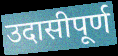
उदासीपूर्ण